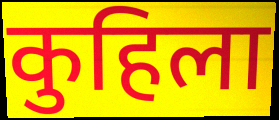
कुहिला